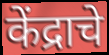
केंद्राचे